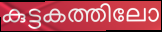
കുട്ടകത്തിലോ